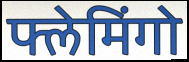
फ्लेमिंगो